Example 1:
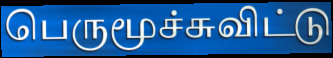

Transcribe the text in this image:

பெருமூச்சுவிட்டு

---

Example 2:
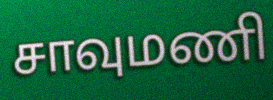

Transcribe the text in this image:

சாவுமணி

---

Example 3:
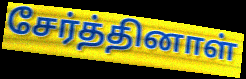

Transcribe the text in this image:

சேர்த்தினாள்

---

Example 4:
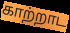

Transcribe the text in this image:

காற்றாட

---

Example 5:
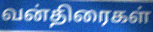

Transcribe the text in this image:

வன்திரைகள்